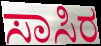
ಸಾಸಿರ